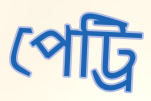
পেট্ৰি